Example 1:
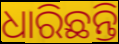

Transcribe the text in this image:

ଧାରିଛନ୍ତି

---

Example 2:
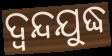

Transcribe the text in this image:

ଦ୍ୱନ୍ଦଯୁଦ୍ଧ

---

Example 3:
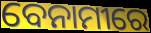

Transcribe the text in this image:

ବେନାମୀରେ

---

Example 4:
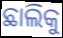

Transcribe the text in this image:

ଛାଲିକୁ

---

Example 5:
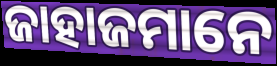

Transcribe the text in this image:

ଜାହାଜମାନେ